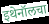
इथेनॉलचा